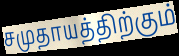
சமுதாயத்திற்கும்